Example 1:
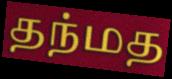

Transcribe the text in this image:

தந்மத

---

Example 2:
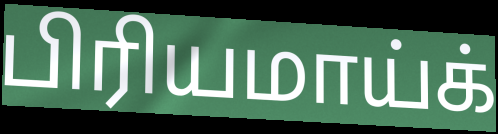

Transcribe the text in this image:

பிரியமாய்க்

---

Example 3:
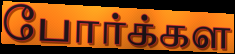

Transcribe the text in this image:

போர்க்கள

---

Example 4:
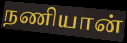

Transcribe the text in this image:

நணியான்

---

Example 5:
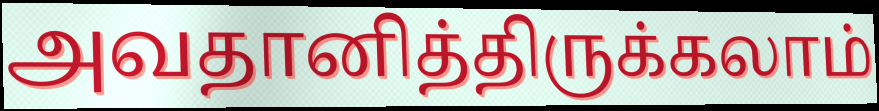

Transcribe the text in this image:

அவதானித்திருக்கலாம்